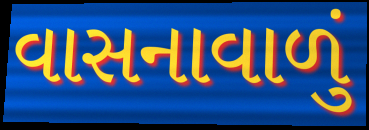
વાસનાવાળું